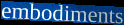
embodiments